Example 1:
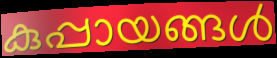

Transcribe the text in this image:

കുപ്പായങ്ങൾ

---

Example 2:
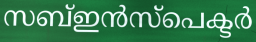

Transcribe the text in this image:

സബ്ഇൻസ്പെക്ടർ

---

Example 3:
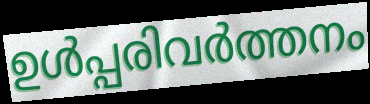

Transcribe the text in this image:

ഉൾപ്പരിവർത്തനം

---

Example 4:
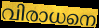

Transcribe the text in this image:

വിരാധനെ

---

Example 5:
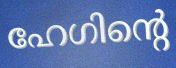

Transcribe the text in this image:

ഹേഗിന്റെ